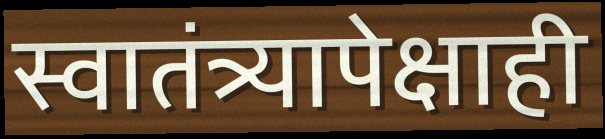
स्वातंत्र्यापेक्षाही